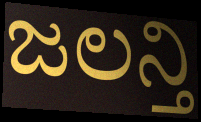
ಜಲನ್ತಿ